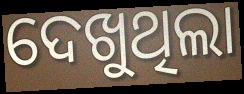
ଦେଖୁଥିଲା